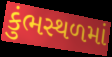
કુંભસ્થળમાં